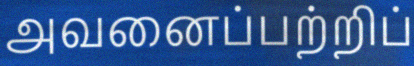
அவனைப்பற்றிப்